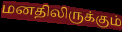
மனதிலிருக்கும்